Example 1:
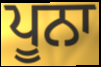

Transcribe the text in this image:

ਪੂਨਾ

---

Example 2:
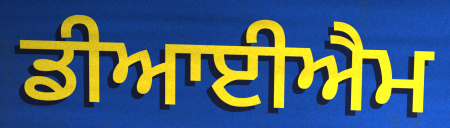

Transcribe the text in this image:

ਡੀਆਈਐਮ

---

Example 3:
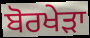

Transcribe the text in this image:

ਬੋਰਖੇੜਾ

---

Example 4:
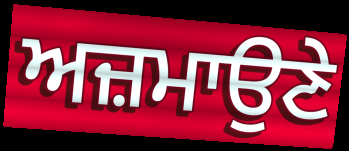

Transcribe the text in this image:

ਅਜ਼ਮਾਉਣੇ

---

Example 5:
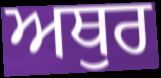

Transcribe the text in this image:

ਅਥੁਰ